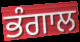
ਭੰਗਾਲ